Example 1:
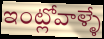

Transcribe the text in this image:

ఇంట్లోవాళ్ళే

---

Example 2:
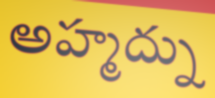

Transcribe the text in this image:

అహ్మద్ను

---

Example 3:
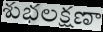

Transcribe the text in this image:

శుభలక్షణా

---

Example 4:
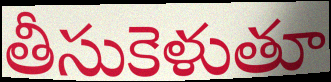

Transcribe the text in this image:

తీసుకెళుతూ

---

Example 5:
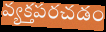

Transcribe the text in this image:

వ్యక్తపరచడం